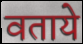
वताये